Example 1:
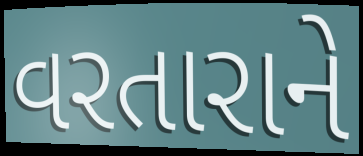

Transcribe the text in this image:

વરતારાને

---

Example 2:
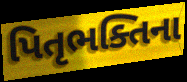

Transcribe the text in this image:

પિતૃભક્તિના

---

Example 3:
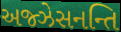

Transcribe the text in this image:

અજ્ઝેસનન્તિ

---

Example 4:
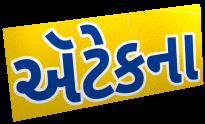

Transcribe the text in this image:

ઍટેકના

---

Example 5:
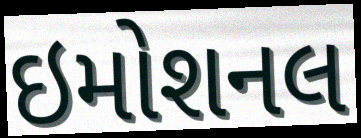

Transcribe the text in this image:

ઇમોશનલ